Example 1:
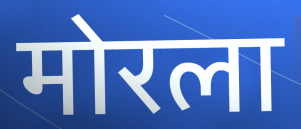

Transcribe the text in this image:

मोरला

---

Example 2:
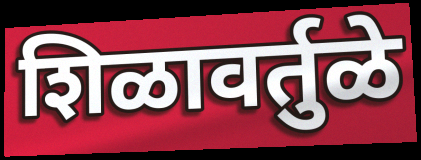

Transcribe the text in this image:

शिळावर्तुळे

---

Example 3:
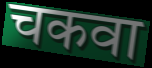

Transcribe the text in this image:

चकवा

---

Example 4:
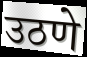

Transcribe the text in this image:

उठणे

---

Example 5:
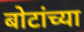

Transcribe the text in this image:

बोटांच्या